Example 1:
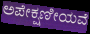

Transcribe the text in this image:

ಅಪೇಕ್ಷಣೀಯವೆ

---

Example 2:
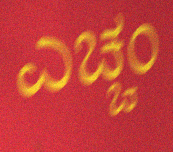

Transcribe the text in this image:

ಎಚ್ಚಂ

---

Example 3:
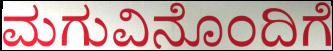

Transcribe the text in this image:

ಮಗುವಿನೊಂದಿಗೆ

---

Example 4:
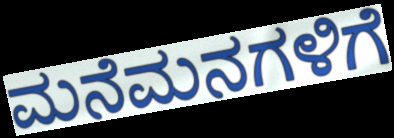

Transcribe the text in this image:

ಮನೆಮನಗಳಿಗೆ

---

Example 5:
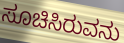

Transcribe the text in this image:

ಸೂಚಿಸಿರುವನು